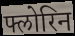
फ्लोरिन